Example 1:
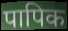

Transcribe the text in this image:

पापिक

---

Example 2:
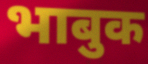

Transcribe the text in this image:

भाबुक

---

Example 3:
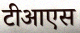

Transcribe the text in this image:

टीआएस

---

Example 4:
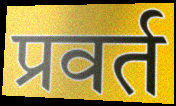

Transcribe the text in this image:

प्रवर्त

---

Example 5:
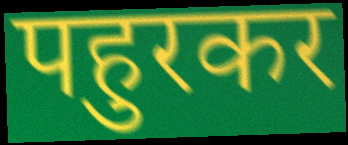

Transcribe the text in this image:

पहुरकर